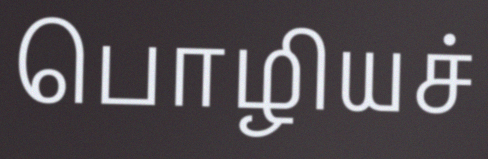
பொழியச்